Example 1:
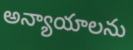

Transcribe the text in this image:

అన్యాయాలను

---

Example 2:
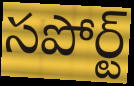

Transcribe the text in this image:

సపోర్ట్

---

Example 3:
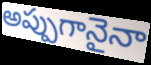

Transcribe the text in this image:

అప్పుగానైనా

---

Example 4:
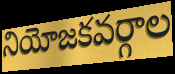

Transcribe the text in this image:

నియోజకవర్గాల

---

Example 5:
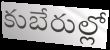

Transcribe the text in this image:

కుబేరుల్లో